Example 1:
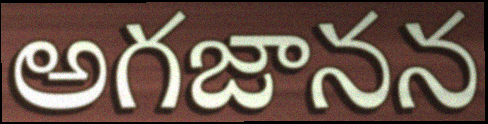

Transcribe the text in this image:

అగజానన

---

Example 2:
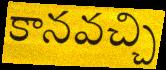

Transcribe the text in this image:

కానవచ్చి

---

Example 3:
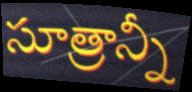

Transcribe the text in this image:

సూత్రాన్నీ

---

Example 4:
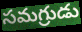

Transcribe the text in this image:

సమగ్రుడు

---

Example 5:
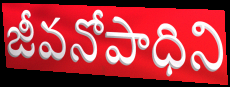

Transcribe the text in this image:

జీవనోపాధిని